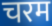
चरम